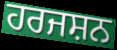
ਹਰਜਸ਼ਨ